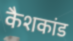
कैशकांड